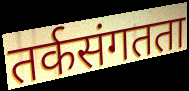
तर्कसंगतता